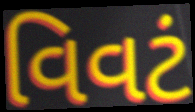
વિવટં